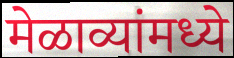
मेळाव्यांमध्ये